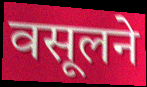
वसूलने